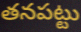
తనపట్టు